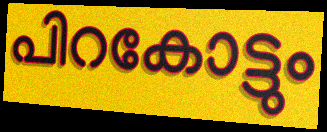
പിറകോട്ടും